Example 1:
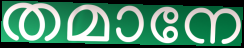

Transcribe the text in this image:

തമാനേ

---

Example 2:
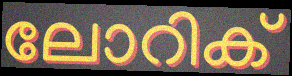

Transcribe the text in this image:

ലോറിക്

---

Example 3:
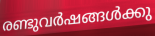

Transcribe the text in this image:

രണ്ടുവർഷങ്ങൾക്കു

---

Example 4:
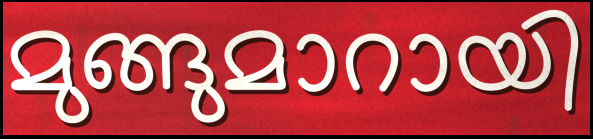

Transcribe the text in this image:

മുങ്ങുമാറായി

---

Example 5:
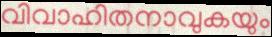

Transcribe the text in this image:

വിവാഹിതനാവുകയും